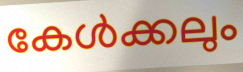
കേൾക്കലും